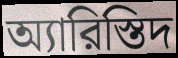
অ্যারিস্তিদ